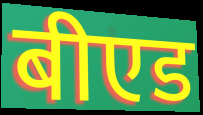
बीएड